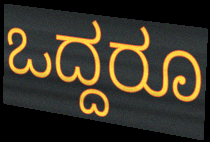
ಒದ್ದರೂ